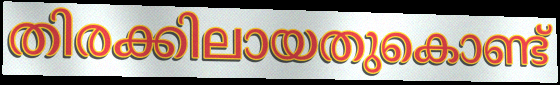
തിരക്കിലായതുകൊണ്ട്